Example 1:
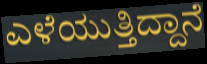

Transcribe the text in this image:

ಎಳೆಯುತ್ತಿದ್ದಾನೆ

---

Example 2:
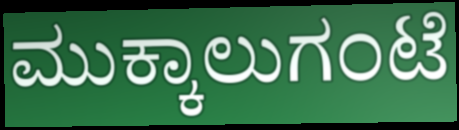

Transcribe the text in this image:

ಮುಕ್ಕಾಲುಗಂಟೆ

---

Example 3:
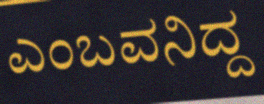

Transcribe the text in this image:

ಎಂಬವನಿದ್ದ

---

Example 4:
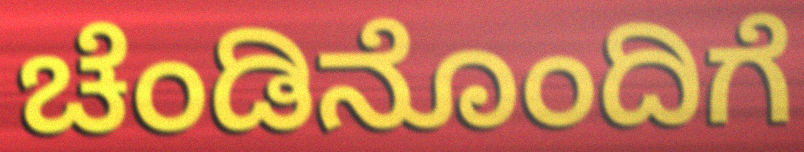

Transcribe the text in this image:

ಚೆಂಡಿನೊಂದಿಗೆ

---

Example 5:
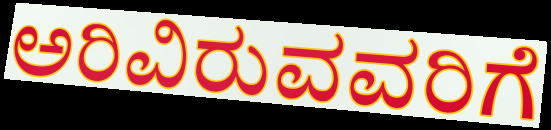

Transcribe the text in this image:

ಅರಿವಿರುವವರಿಗೆ